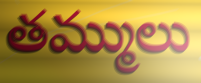
తమ్ములు